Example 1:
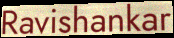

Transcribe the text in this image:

Ravishankar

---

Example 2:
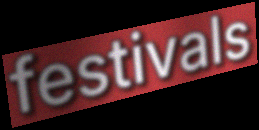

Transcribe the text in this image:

festivals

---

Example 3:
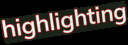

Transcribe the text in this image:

highlighting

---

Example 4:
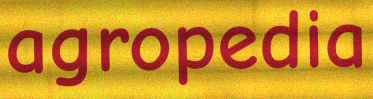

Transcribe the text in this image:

agropedia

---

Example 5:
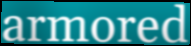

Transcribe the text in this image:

armored